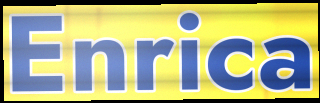
Enrica